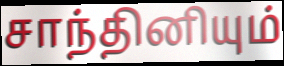
சாந்தினியும்